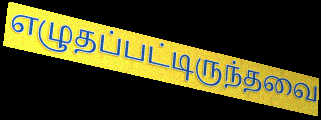
எழுதப்பட்டிருந்தவை